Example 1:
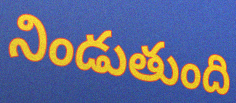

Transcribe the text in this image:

నిండుతుంది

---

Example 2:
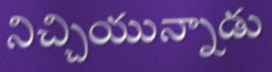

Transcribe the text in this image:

నిచ్చియున్నాడు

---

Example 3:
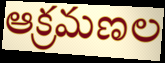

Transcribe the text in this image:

ఆక్రమణల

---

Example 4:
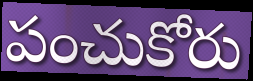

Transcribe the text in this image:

పంచుకోరు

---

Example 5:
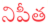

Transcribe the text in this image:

నిపీత